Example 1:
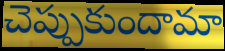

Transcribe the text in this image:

చెప్పుకుందామా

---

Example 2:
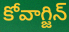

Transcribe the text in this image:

కోవాగ్జిన్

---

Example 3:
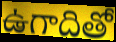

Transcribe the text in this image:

ఉగాదితో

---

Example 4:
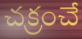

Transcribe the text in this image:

చక్రంచే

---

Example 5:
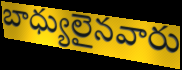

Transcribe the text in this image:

బాధ్యులైనవారు